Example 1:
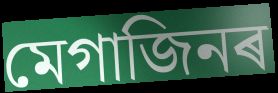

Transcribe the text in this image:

মেগাজিনৰ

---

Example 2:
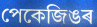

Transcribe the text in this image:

পেকেজিঙৰ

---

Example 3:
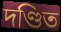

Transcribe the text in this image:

দণ্ডিত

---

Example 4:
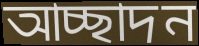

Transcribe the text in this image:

আচ্ছাদন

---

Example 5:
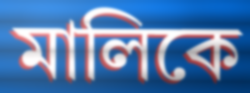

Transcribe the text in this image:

মালিকে